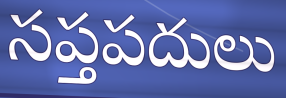
సప్తపదులు